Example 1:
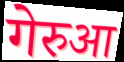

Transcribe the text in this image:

गेरुआ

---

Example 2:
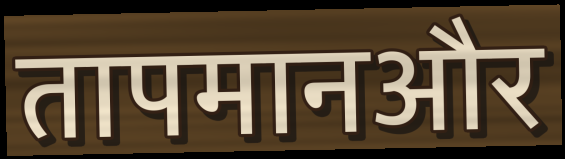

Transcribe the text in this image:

तापमानऔर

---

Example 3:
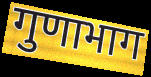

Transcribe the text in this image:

गुणाभाग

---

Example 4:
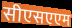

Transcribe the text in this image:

सीएसएएम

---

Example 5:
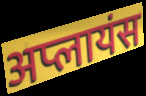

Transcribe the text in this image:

अप्लायंस